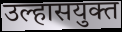
उल्हासयुक्त